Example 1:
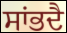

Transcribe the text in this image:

ਸਾਂਭਦੈ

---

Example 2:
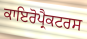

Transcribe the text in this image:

ਕਾਇਰੋਪ੍ਰੈਕਟਰਸ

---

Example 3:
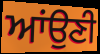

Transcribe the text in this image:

ਆਂਉਣੀ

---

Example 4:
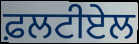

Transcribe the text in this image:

ਫ਼ਲਟੀਏਲ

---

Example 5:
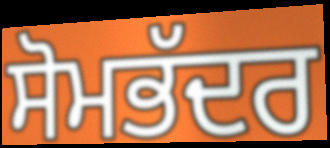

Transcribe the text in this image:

ਸੋਮਭੱਦਰ